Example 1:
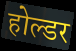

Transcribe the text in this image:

होल्डर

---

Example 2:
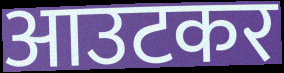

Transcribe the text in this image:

आउटकर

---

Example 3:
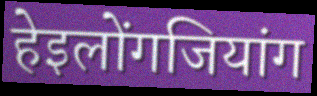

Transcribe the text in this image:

हेइलोंगजियांग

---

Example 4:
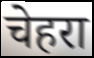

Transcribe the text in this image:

चेहरा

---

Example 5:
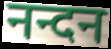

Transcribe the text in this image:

नन्दन